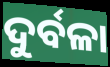
ଦୁର୍ବଳା